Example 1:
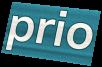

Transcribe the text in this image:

prio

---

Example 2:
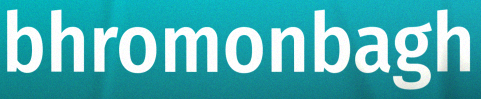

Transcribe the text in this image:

bhromonbagh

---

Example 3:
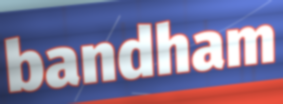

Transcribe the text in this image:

bandham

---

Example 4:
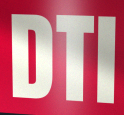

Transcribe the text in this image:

DTI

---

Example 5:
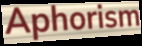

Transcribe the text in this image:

Aphorism